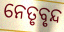
ନେତୃବୃନ୍ଦ